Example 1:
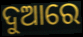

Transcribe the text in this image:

ଦୁଆରେ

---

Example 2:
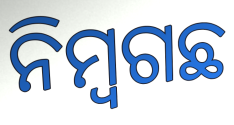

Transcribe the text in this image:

ନିମ୍ୱଗଛ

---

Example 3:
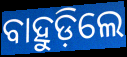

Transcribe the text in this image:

ବାହୁଡ଼ିଲେ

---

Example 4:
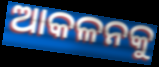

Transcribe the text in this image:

ଆକଳନକୁ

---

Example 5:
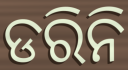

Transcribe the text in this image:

ଡରିନି